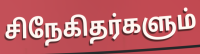
சிநேகிதர்களும்